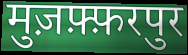
मुज़फ़्फ़रपुर